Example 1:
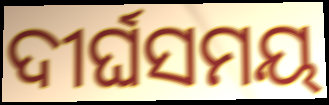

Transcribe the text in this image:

ଦୀର୍ଘସମୟ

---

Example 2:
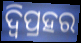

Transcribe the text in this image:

ଦ୍ବିପ୍ରହର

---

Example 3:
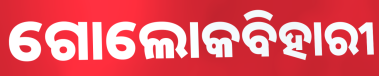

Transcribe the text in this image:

ଗୋଲୋକବିହାରୀ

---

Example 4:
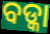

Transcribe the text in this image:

ବଡ୍କା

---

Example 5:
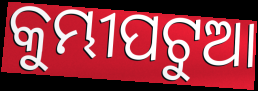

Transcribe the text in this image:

କୁମ୍ଭୀପଟୁଆ